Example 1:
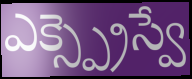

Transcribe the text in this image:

ఎక్స్ప్రెస్వే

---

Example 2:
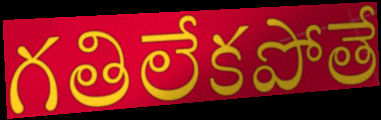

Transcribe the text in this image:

గతిలేకపోతే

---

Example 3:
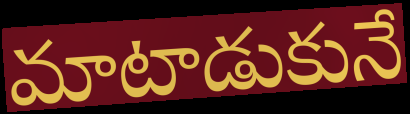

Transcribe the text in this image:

మాటాడుకునే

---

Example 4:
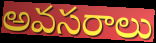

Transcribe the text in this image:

అవసరాలు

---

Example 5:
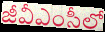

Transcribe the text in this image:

జీవీఎంసీలో